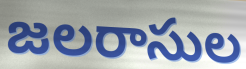
జలరాసుల